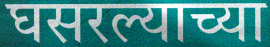
घसरल्याच्या